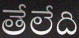
తేలేది